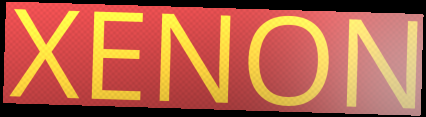
XENON